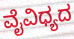
ವೈವಿಧ್ಯದ